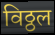
विठ्ठल